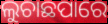
ଲୁଚାଛପାରେ